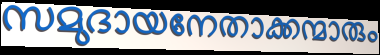
സമുദായനേതാക്കന്മാരും